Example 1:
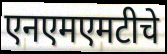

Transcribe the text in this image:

एनएमएमटीचे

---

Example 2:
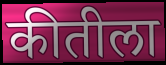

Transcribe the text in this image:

कीतीला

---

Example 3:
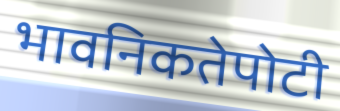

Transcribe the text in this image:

भावनिकतेपोटी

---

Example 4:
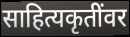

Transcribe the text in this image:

साहित्यकृतींवर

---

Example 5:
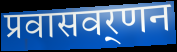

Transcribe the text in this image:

प्रवासवर्णन